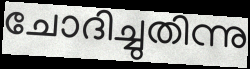
ചോദിച്ചുതിന്നു